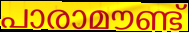
പാരാമൗണ്ട്